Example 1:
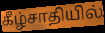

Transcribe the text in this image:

கீழ்சாதியில்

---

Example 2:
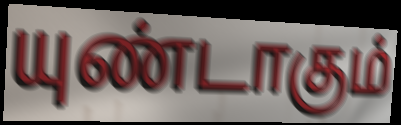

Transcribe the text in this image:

யுண்டாகும்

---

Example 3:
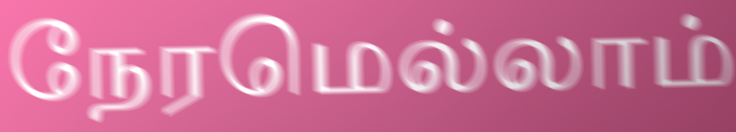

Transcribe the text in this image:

நேரமெல்லாம்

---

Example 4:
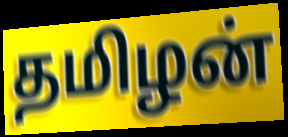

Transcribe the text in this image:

தமிழன்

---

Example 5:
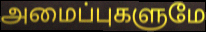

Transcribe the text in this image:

அமைப்புகளுமே